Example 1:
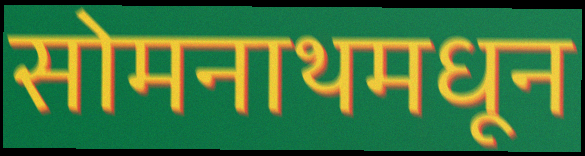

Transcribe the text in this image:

सोमनाथमधून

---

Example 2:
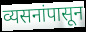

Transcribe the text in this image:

व्यसनांपासून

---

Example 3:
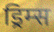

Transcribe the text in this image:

ड्रिम्स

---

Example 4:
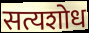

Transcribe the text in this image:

सत्यशोध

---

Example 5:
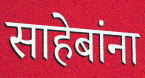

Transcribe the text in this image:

साहेबांना